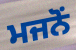
ਮਜਨੋਂ